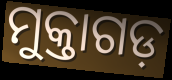
ମୁକ୍ତାଗଡ଼